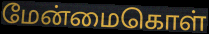
மேன்மைகொள்